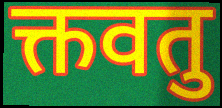
क्तवतु